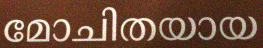
മോചിതയായ